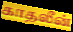
காதலீன்